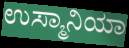
ಉಸ್ಮಾನಿಯಾ